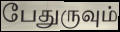
பேதுருவும்